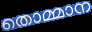
തൊമ്മാന